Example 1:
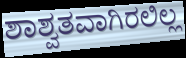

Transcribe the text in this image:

ಶಾಶ್ವತವಾಗಿರಲಿಲ್ಲ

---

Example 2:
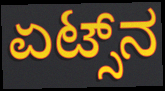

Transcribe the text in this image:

ಏಟ್ಸ್‌ನ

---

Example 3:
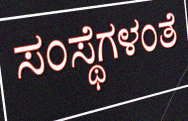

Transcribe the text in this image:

ಸಂಸ್ಥೆಗಳಂತೆ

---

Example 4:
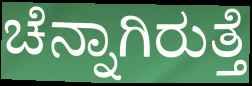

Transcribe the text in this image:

ಚೆನ್ನಾಗಿರುತ್ತೆ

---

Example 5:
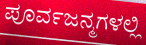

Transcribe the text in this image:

ಪೂರ್ವಜನ್ಮಗಳಲ್ಲಿ